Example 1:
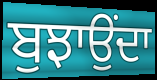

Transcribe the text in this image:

ਬੁਝਾਉਂਦਾ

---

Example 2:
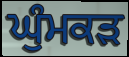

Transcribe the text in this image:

ਘੁੰਮਕੜ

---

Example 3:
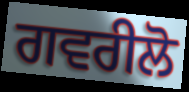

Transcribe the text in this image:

ਗਵਰੀਲੋ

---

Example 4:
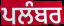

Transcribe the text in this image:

ਪਲੰਬਰ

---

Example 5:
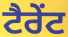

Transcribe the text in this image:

ਟੈਰੇਂਟ